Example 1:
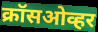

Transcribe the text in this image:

क्रॉसओव्हर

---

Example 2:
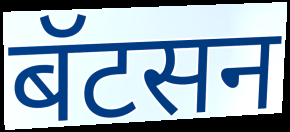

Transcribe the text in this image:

बॅटसन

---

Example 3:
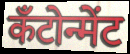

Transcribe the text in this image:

कँटोन्मेंट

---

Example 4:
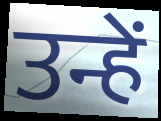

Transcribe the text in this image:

उन्हें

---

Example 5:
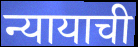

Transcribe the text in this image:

न्यायाची